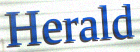
Herald